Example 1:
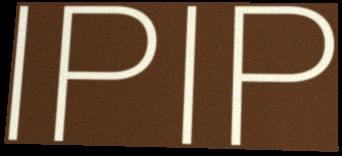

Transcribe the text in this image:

IPIP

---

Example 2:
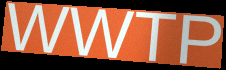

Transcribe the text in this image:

WWTP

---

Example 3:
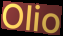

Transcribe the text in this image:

Olio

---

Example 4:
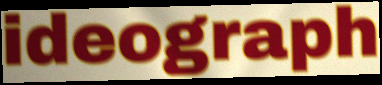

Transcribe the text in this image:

ideograph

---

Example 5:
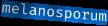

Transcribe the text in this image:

melanosporum